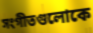
সংগীতগুলোকে